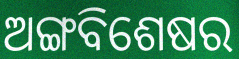
ଅଙ୍ଗବିଶେଷର